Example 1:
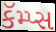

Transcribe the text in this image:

કૅમ્પ્સ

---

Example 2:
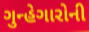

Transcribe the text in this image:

ગુન્હેગારોની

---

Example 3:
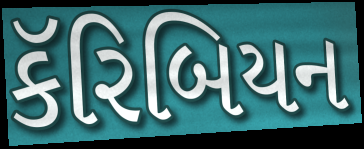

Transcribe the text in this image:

કૅરિબિયન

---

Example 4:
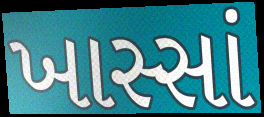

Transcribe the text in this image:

ખાસ્સાં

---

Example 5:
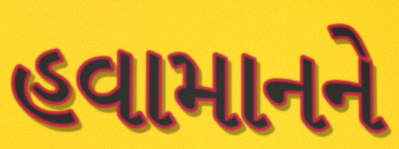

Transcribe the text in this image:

હવામાનને